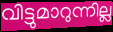
വിട്ടുമാറുന്നില്ല